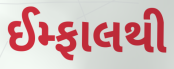
ઈમ્ફાલથી